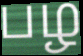
பழ